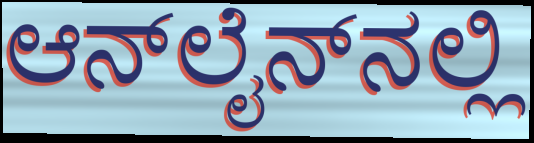
ಆನ್‌ಲೈನ್‌ನಲ್ಲಿ